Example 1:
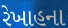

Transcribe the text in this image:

રેખાહના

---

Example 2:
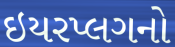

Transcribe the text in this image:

ઇયરપ્લગનો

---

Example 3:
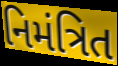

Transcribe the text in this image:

નિમંત્રિત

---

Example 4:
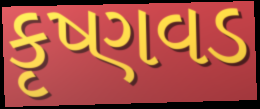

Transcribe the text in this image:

કૃષ્ણવડ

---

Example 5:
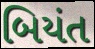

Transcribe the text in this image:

બિયંત